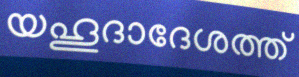
യഹൂദാദേശത്ത്